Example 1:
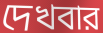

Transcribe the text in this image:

দেখবার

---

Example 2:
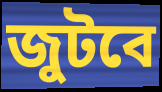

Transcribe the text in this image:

জুটবে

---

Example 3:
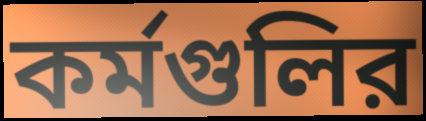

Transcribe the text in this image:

কর্মগুলির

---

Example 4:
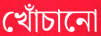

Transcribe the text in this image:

খোঁচানো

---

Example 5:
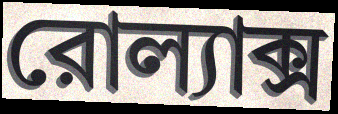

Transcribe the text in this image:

রোল্যাক্স